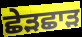
ਛੇੜਛਾੜ